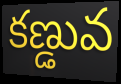
కణ్డువ